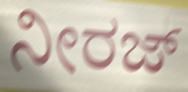
ನೀರಜ್